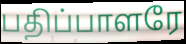
பதிப்பாளரே